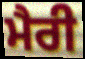
ਮੈਰੀ